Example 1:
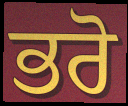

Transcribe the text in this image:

ਭਰੋ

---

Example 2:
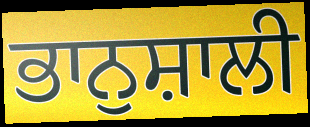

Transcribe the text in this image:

ਭਾਨੁਸ਼ਾਲੀ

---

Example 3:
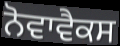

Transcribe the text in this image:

ਨੋਵਾਵੈਕਸ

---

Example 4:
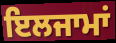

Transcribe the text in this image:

ਇਲਜਾਮਾਂ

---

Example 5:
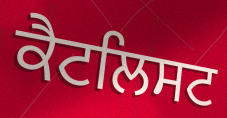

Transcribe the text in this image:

ਕੈਟਲਿਸਟ